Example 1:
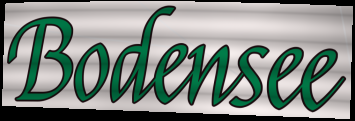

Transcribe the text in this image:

Bodensee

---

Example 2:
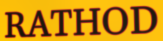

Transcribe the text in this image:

RATHOD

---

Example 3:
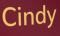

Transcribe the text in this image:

Cindy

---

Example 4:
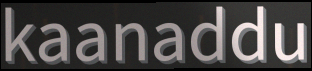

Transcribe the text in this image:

kaanaddu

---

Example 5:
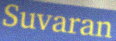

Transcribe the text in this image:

Suvaran